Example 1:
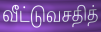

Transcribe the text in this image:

வீட்டுவசதித்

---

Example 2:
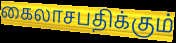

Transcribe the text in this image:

கைலாசபதிக்கும்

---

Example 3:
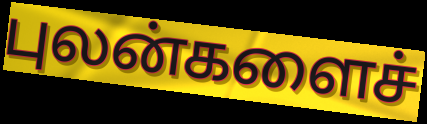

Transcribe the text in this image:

புலன்களைச்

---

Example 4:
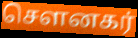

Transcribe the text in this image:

சௌனகர்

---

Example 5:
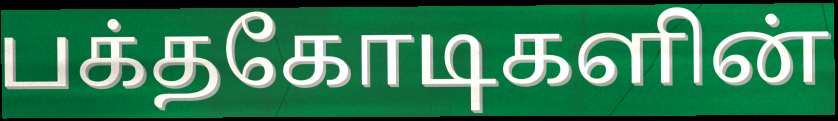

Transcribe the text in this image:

பக்தகோடிகளின்